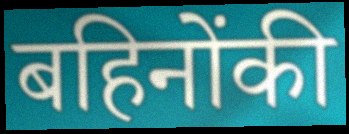
बहिनोंकी